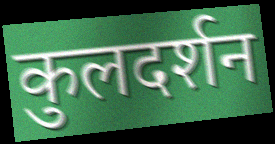
कुलदर्शन